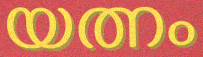
യത്നം